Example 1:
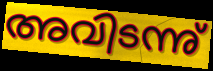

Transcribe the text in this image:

അവിടന്നു്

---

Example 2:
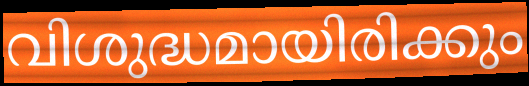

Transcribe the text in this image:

വിശുദ്ധമായിരിക്കും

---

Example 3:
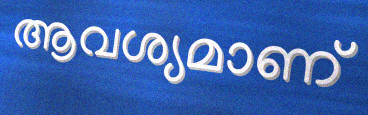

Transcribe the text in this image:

ആവശ്യമാണ്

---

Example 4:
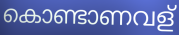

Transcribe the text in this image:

കൊണ്ടാണവള്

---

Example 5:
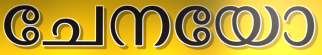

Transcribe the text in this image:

ചേനയോ